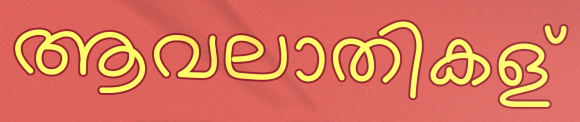
ആവലാതികള്